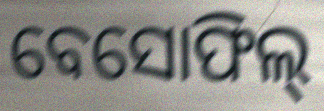
ବେସୋଫିଲ୍